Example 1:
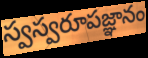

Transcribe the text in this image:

స్వస్వరూపజ్ఞానం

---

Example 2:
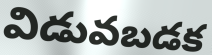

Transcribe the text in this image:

విడువబడక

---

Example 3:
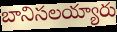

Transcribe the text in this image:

బానిసలయ్యారు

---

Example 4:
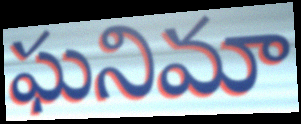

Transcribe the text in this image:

ఘనిమా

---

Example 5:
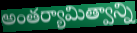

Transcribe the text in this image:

అంతర్యామిత్వాన్ని